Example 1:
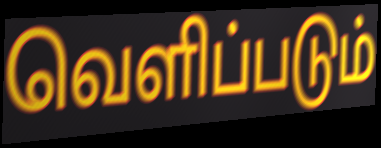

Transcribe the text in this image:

வெளிப்படும்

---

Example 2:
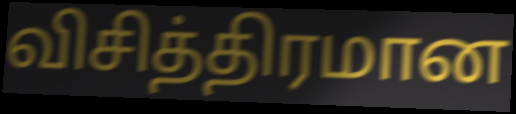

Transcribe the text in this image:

விசித்திரமான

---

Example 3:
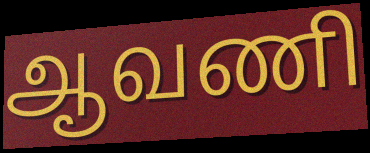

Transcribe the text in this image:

ஆவணி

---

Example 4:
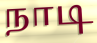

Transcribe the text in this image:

நாடி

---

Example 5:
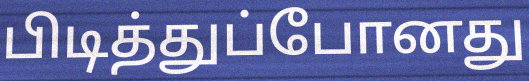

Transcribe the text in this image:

பிடித்துப்போனது